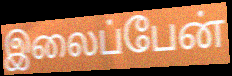
இலைப்பேன்